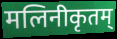
मलिनीकृतम्